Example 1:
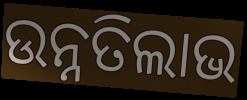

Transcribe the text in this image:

ଉନ୍ନତିଲାଭ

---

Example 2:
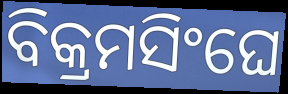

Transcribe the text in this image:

ବିକ୍ରମସିଂଘେ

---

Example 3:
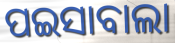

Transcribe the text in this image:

ପଇସାବାଲା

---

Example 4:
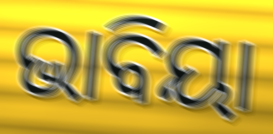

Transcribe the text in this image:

ଭାବିୟା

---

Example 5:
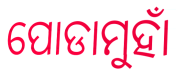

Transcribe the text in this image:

ପୋଡାମୁହାଁ